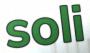
soli